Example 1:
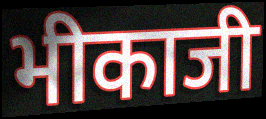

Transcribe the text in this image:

भीकाजी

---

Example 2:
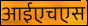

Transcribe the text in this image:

आईएचएस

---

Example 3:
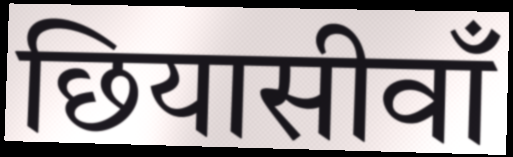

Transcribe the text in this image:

छियासीवाँ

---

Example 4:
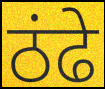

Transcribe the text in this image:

ठंढे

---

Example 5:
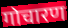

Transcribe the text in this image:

गोचारण